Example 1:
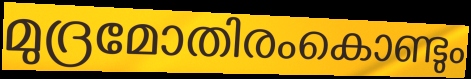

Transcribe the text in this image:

മുദ്രമോതിരംകൊണ്ടും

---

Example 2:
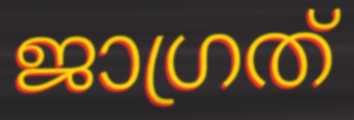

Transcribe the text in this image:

ജാഗ്രത്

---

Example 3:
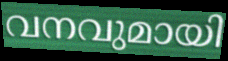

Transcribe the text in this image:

വനവുമായി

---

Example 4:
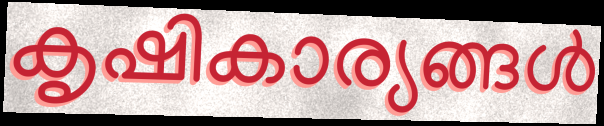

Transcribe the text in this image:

കൃഷികാര്യങ്ങൾ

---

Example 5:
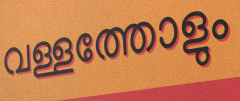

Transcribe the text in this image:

വള്ളത്തോളും